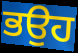
ਭਉਹ